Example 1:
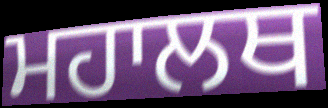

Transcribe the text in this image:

ਮਹਾਲਥ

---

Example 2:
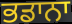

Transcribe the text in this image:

ਭਡਾਨਾ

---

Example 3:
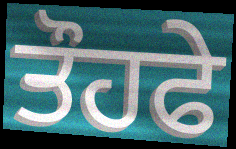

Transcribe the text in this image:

ਤੌਹਫੇ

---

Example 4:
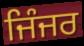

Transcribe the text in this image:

ਜਿੰਜਰ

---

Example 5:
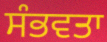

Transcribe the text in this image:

ਸੰਭਵਤਾ